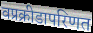
वप्रक्रीडापरिणत